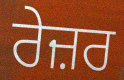
ਰੇਜ਼ਰ